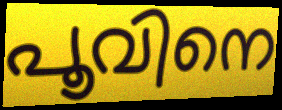
പൂവിനെ